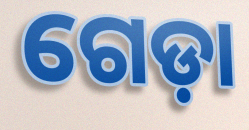
ଗେଡ଼ା